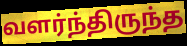
வளர்ந்திருந்த